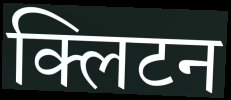
क्लिटन